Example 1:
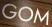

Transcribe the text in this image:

GOM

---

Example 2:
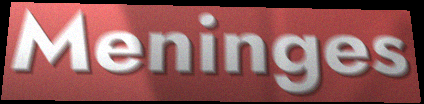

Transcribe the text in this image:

Meninges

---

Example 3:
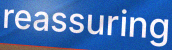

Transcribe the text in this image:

reassuring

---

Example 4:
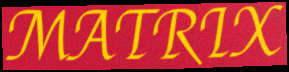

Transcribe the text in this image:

MATRIX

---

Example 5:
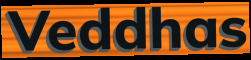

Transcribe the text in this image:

Veddhas